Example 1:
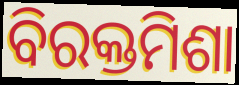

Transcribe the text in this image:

ବିରକ୍ତମିଶା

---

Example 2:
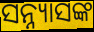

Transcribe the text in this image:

ସନ୍ନ୍ୟାସଙ୍କ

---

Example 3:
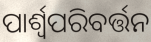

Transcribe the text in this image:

ପାର୍ଶ୍ଵପରିବର୍ତ୍ତନ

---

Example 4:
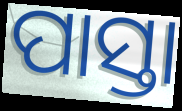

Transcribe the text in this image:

ପାସ୍ତା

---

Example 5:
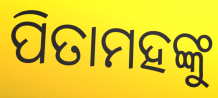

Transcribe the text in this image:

ପିତାମହଙ୍କୁ